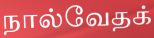
நால்வேதக்